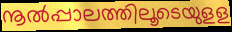
നൂൽപ്പാലത്തിലൂടെയുളള